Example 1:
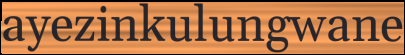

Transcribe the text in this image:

ayezinkulungwane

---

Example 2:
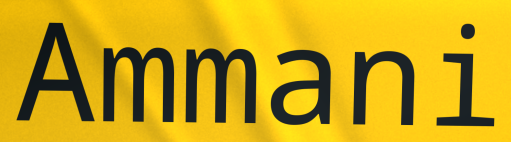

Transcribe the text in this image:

Ammani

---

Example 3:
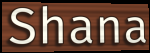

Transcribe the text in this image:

Shana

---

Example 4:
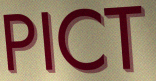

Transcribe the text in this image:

PICT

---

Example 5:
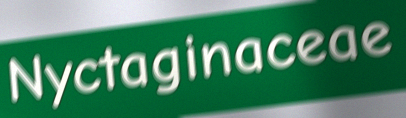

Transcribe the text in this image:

Nyctaginaceae